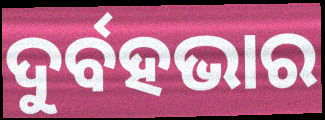
ଦୁର୍ବହଭାର